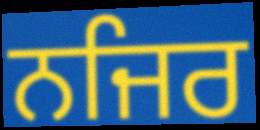
ਨਜਿਰ